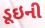
ડૂઇની